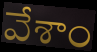
వేశాం